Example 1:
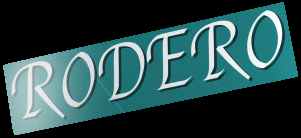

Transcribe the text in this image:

RODERO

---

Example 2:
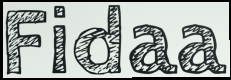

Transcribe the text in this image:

Fidaa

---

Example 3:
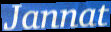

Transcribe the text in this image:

Jannat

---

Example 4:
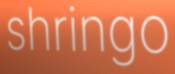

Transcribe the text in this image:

shringo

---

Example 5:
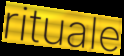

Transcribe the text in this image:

rituale